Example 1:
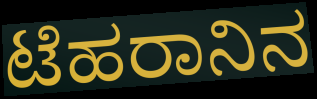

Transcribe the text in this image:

ಟೆಹರಾನಿನ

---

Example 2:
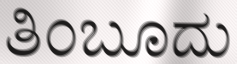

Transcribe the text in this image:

ತಿಂಬೂದು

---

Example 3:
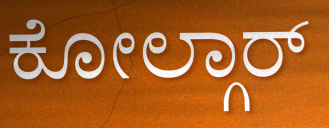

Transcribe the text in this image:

ಕೋಲ್ಗಾರ್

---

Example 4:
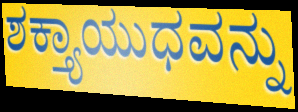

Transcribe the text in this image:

ಶಕ್ತ್ಯಾಯುಧವನ್ನು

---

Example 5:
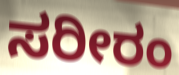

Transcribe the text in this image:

ಸರೀರಂ